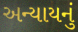
અન્યાયનું